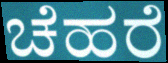
ಚೆಹರೆ